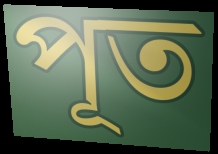
পূত